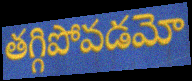
తగ్గిపోవడమో